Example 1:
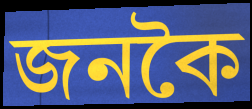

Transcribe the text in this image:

জনকৈ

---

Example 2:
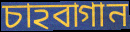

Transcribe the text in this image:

চাহবাগান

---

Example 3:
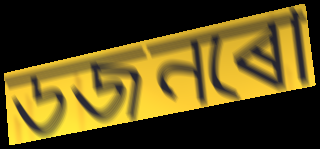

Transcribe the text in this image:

ডজনৰো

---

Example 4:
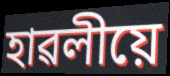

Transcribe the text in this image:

হাৱলীয়ে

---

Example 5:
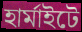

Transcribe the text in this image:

হাৰ্মাইটে